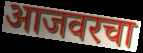
आजवरचा